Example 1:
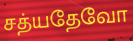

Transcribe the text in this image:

சத்யதேவோ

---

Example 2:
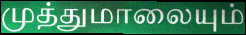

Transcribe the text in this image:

முத்துமாலையும்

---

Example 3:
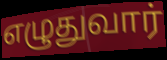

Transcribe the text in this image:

எழுதுவார்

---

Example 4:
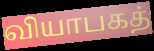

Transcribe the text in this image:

வியாபகத்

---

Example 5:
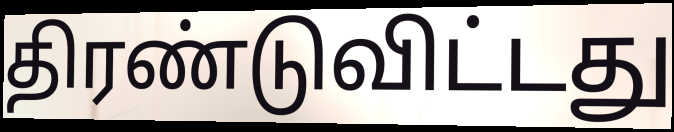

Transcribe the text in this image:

திரண்டுவிட்டது